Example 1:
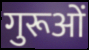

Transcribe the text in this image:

गुरूओं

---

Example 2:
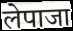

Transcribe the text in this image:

लेपाजा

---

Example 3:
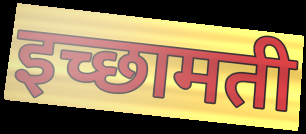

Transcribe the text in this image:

इच्छामती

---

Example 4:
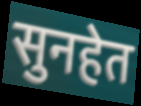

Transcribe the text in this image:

सुनहेत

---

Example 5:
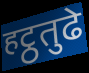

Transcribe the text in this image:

हट्ठतुढे